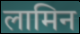
लामिन